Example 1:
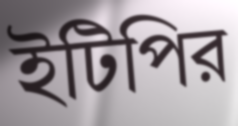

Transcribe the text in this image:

ইটিপির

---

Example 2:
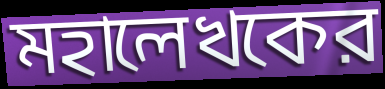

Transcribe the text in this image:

মহালেখকের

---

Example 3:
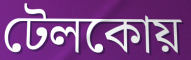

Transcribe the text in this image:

টেলকোয়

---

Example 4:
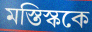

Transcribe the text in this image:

মস্তিস্ককে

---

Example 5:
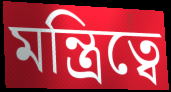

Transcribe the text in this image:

মন্ত্রিত্বে